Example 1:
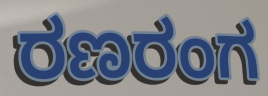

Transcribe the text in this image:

ರಣರಂಗ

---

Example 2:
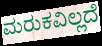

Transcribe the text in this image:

ಮರುಕವಿಲ್ಲದೆ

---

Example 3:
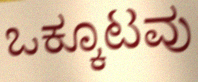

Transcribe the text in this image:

ಒಕ್ಕೂಟವು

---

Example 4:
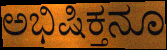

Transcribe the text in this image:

ಅಭಿಷಿಕ್ತನೂ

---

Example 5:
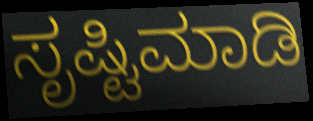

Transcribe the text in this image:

ಸೃಷ್ಟಿಮಾಡಿ